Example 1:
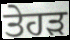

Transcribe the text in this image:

ਤੇਹੜ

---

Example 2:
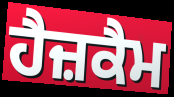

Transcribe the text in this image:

ਹੈਜ਼ਕੈਮ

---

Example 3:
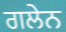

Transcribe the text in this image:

ਗਲੇਨ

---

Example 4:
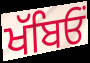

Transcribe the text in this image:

ਖੱਬਿਓਂ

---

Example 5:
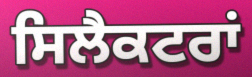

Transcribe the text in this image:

ਸਿਲੈਕਟਰਾਂ